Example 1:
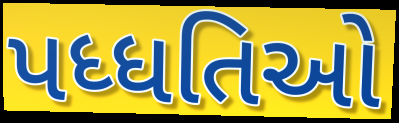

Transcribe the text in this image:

પધ્ધતિઓ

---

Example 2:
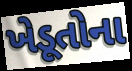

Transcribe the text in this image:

ખેડૂતોના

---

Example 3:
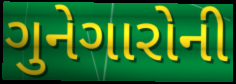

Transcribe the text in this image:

ગુનેગારોની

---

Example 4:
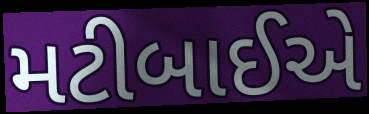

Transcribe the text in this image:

મટીબાઈએ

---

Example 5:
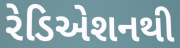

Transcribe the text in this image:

રેડિએશનથી